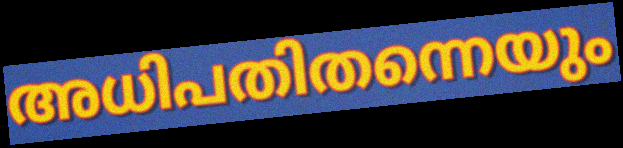
അധിപതിതന്നെയും